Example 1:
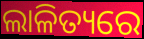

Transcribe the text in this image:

ଲାଳିତ୍ୟରେ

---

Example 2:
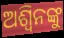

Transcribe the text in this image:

ଅଶ୍ବିନଙ୍କୁ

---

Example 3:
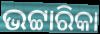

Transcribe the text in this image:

ଭଟ୍ଟାରିକା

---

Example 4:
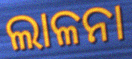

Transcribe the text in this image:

ଲାଳନା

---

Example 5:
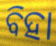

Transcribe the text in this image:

ବିହା